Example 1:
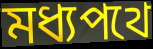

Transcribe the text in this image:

মধ্যপথে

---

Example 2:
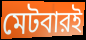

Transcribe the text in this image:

মেটবারই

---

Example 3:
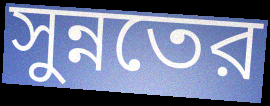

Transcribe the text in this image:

সুন্নতের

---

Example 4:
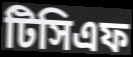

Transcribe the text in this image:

টিসিএফ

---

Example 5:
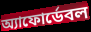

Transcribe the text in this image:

অ্যাফোর্ডেবল